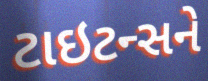
ટાઇટન્સને